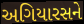
અગિયારસને